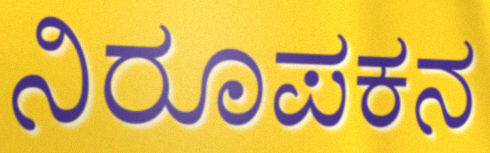
ನಿರೂಪಕನ